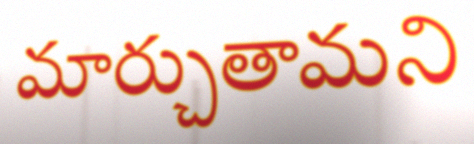
మార్చుతామని